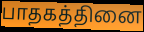
பாதகத்தினை